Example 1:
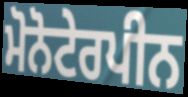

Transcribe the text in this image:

ਮੋਨੋਟੇਰਪੀਨ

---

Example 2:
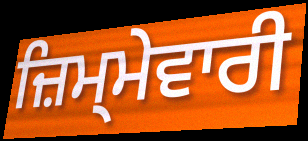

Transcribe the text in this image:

ਜ਼ਿਮ੍ਮੇਵਾਰੀ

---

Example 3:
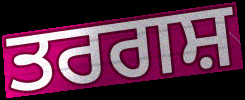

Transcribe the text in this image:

ਤਰਗਸ਼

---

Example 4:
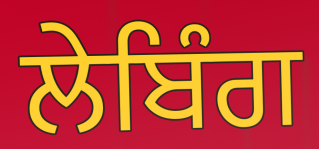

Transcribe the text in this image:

ਲੇਬਿੰਗ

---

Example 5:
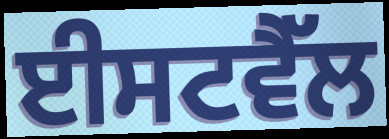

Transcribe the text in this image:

ਈਸਟਵੈੱਲ